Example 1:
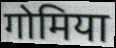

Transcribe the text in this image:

गोमिया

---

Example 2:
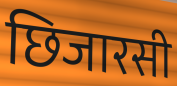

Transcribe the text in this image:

छिजारसी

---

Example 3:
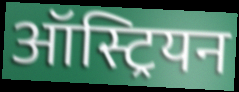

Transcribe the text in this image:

ऑस्ट्रियन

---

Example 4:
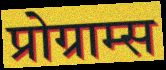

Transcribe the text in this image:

प्रोग्राम्‍स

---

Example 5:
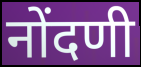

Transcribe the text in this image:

नोंदणी